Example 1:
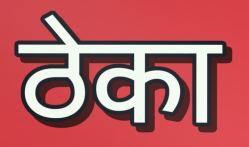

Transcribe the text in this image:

ठेका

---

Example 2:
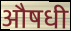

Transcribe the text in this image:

औषधी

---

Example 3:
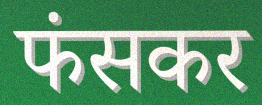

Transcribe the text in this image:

फंसकर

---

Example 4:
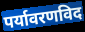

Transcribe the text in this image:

पर्यावरणविद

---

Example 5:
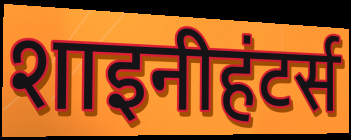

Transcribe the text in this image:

शाइनीहंटर्स